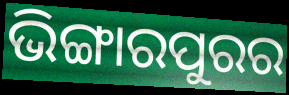
ଭିଙ୍ଗାରପୁରର